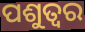
ପଶୁତ୍ୱର